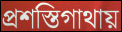
প্রশস্তিগাথায়